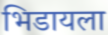
भिडायला